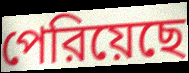
পেরিয়েছে